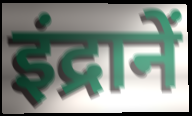
इंद्रानें